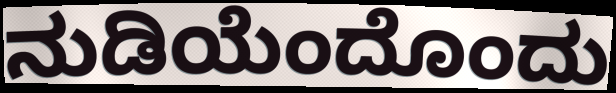
ನುಡಿಯೆಂದೊಂದು